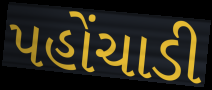
પહોંચાડી